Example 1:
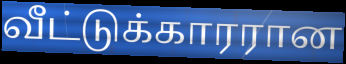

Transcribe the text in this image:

வீட்டுக்காரரான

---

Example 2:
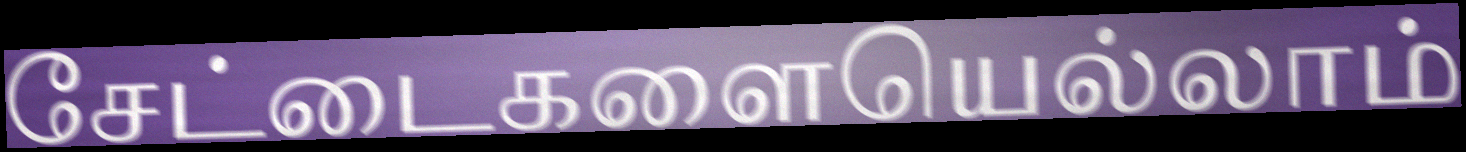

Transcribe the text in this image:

சேட்டைகளையெல்லாம்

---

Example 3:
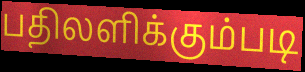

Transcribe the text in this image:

பதிலளிக்கும்படி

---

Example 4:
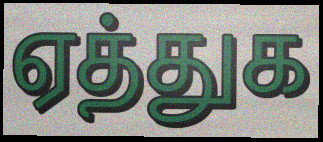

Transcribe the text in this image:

ஏத்துக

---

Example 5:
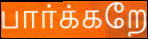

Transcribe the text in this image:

பார்க்கறே